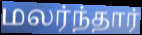
மலர்ந்தார்